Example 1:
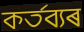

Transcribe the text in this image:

কৰ্তব্যৰ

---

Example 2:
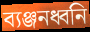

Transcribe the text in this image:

ব্যঞ্জনধ্বনি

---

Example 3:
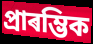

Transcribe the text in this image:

প্ৰাৰম্ভিক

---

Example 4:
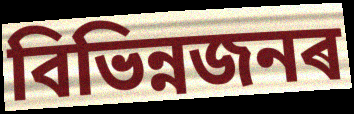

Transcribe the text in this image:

বিভিন্নজনৰ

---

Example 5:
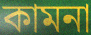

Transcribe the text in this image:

কামনা